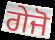
ਗੇਜੋ